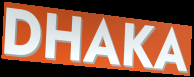
DHAKA